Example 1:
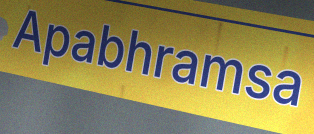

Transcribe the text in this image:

Apabhramsa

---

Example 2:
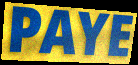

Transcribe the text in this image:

PAYE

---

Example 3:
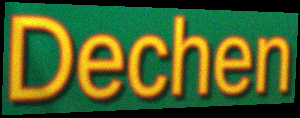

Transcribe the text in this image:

Dechen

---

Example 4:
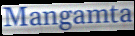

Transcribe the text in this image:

Mangamta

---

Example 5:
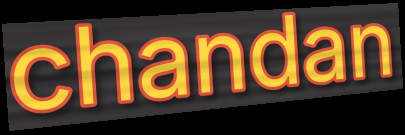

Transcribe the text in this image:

chandan